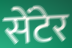
सेंटेर